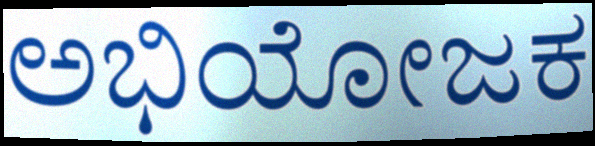
ಅಭಿಯೋಜಕ